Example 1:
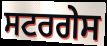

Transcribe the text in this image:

ਸਟਰਗੇਸ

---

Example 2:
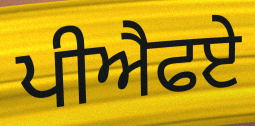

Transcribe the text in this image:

ਪੀਐਫਏ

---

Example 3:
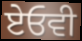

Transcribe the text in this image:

ਏਓਵੀ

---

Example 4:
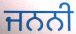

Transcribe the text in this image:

ਜਨਨੀ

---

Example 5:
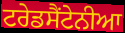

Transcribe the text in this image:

ਟਰੇਡਸੈਂਟੇਨੀਆ